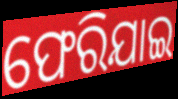
ଫେରିଯାଇ